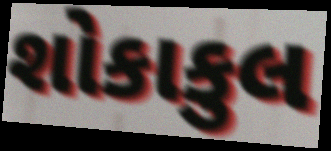
શોકાકુલ